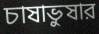
চাষাভুষার